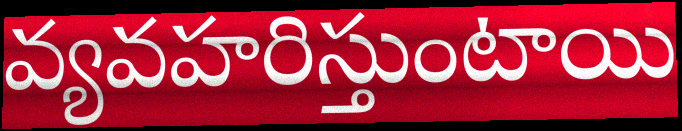
వ్యవహరిస్తుంటాయి